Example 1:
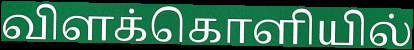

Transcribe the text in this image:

விளக்கொளியில்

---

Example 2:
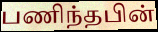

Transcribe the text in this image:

பணிந்தபின்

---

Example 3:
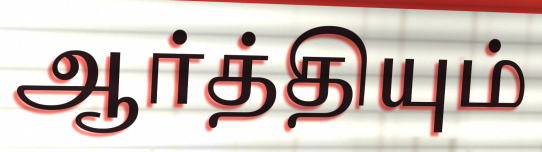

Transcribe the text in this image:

ஆர்த்தியும்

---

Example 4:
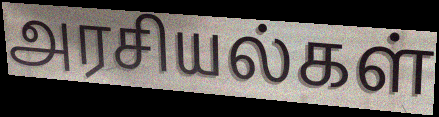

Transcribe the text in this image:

அரசியல்கள்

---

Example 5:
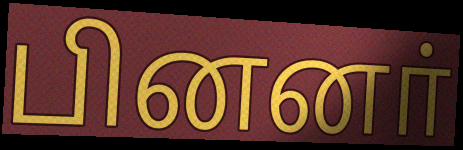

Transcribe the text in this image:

பினனர்